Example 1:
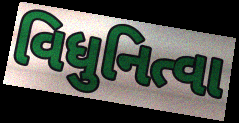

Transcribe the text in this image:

વિધુનિત્વા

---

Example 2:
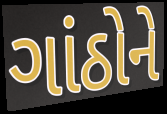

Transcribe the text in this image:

ગાંઠોને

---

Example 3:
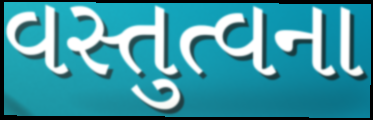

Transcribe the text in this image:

વસ્તુત્વના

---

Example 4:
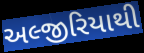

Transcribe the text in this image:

અલ્જીરિયાથી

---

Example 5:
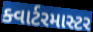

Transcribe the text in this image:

ક્વાર્ટરમાસ્ટર